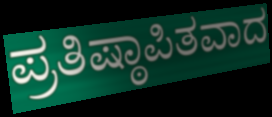
ಪ್ರತಿಷ್ಠಾಪಿತವಾದ